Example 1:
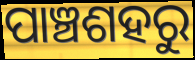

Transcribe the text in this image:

ପାଞ୍ଚଶହରୁ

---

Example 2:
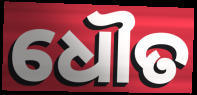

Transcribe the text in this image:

ଧୌତ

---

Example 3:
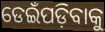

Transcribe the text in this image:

ଡେଇଁପଡ଼ିବାକୁ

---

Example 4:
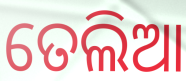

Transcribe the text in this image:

ତେଲିଆ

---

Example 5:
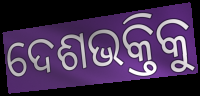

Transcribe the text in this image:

ଦେଶଭକ୍ତିକୁ